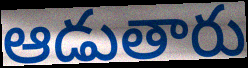
ఆడుతారు